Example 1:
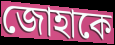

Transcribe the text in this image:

জোহাকে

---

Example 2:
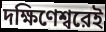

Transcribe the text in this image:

দক্ষিণেশ্বরেই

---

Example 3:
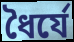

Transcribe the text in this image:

ধৈর্যে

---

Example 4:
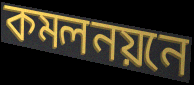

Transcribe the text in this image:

কমলনয়নে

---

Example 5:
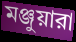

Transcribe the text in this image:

মঞ্জুয়ারা